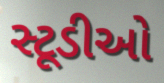
સ્ટૂડીઓ